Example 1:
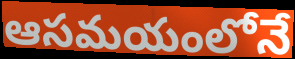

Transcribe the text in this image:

ఆసమయంలోనే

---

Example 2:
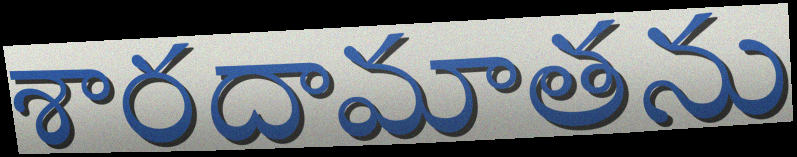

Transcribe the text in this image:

శారదామాతను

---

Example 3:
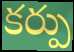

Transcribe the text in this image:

కర్పు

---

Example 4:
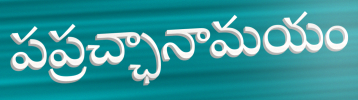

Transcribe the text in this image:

పప్రచ్ఛానామయం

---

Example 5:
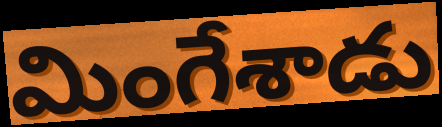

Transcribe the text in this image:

మింగేశాడు